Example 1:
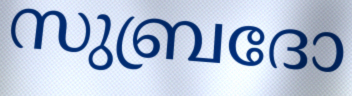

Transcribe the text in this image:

സുബ്രദോ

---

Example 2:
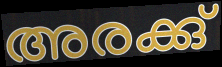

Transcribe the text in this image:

അരക്കു്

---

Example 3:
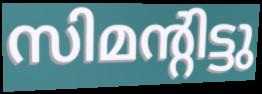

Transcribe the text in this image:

സിമന്റിട്ടു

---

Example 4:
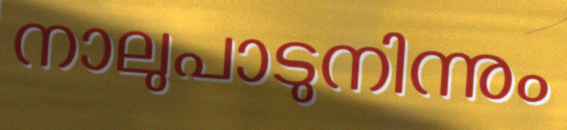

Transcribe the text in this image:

നാലുപാടുനിന്നും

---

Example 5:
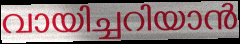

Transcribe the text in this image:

വായിച്ചറിയാൻ